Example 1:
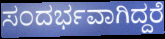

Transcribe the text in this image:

ಸಂದರ್ಭವಾಗಿದ್ದರೆ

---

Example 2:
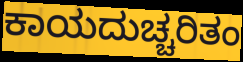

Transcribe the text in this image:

ಕಾಯದುಚ್ಚರಿತಂ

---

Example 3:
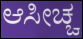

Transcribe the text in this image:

ಆಸೀಚ್ಚ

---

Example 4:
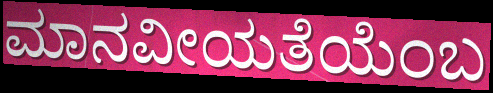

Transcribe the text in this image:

ಮಾನವೀಯತೆಯೆಂಬ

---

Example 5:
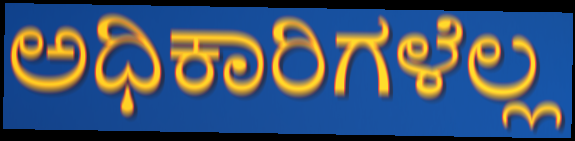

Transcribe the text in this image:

ಅಧಿಕಾರಿಗಳೆಲ್ಲ